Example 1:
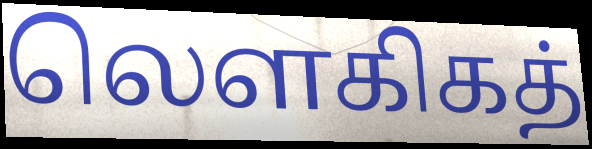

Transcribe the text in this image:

லௌகிகத்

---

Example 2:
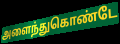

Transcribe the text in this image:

அளைந்துகொண்டே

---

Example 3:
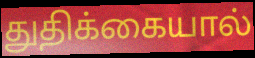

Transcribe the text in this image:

துதிக்கையால்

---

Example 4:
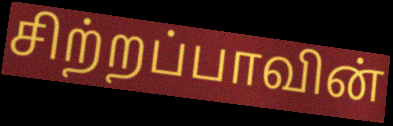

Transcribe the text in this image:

சிற்றப்பாவின்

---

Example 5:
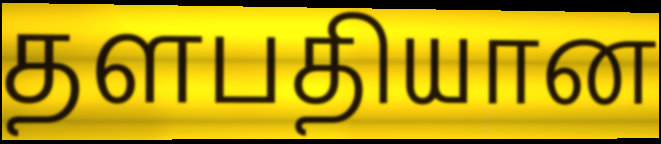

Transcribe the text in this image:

தளபதியான